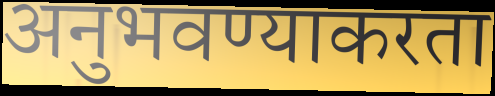
अनुभवण्याकरता